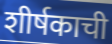
शीर्षकाची